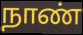
நாண்